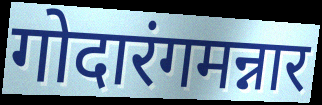
गोदारंगमन्नार